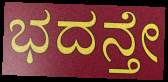
ಭದನ್ತೇ